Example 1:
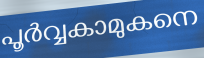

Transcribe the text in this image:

പൂർവ്വകാമുകനെ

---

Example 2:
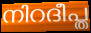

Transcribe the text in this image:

നിറദീപ്ത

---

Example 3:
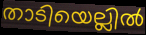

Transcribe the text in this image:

താടിയെല്ലിൽ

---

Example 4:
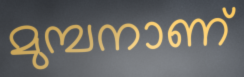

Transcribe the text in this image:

മുമ്പനാണ്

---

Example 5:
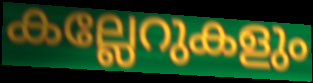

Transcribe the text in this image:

കല്ലേറുകളും